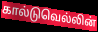
கால்டுவெல்லின்